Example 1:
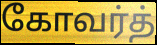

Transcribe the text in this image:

கோவர்த்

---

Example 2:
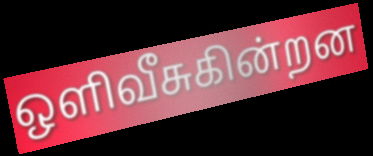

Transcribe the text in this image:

ஒளிவீசுகின்றன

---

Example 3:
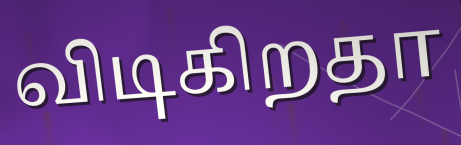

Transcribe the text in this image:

விடிகிறதா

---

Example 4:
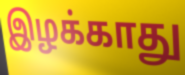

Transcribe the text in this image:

இழக்காது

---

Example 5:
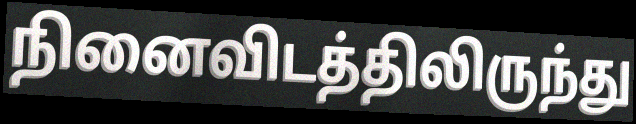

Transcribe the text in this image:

நினைவிடத்திலிருந்து